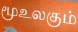
மூஉலகும்